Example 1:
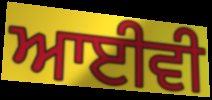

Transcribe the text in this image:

ਆਈਵੀ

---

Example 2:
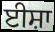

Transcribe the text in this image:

ਈਸ਼ਾ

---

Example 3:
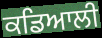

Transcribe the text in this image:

ਕਡਿਆਲੀ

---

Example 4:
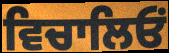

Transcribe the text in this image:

ਵਿਚਾਲਿਓਂ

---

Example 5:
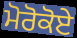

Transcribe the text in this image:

ਮੋਰੋਕੋਏ